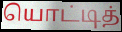
யொட்டித்